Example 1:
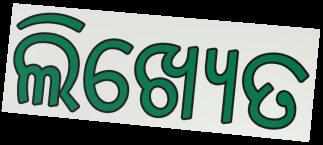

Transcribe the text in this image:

ଲିଖ୍ଯେତ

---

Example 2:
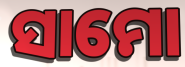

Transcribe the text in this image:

ସାମୋ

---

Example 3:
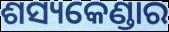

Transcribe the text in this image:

ଶସ୍ୟକେଣ୍ଡାର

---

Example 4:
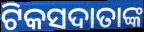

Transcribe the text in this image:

ଟିକସଦାତାଙ୍କ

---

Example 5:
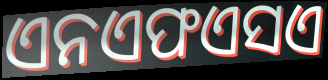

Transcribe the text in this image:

ଏନଏଫଏସଏ